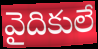
వైదికులే